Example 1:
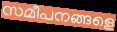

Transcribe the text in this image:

സമീപനങ്ങളെ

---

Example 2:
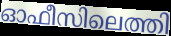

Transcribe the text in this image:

ഓഫീസിലെത്തി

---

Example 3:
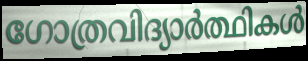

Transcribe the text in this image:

ഗോത്രവിദ്യാർത്ഥികൾ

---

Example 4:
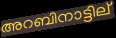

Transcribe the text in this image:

അറബിനാട്ടില്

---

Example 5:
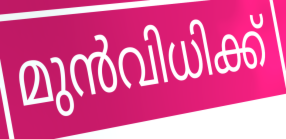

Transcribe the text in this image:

മുൻവിധിക്ക്